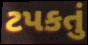
ટપકતું